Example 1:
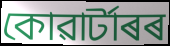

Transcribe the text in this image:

কোৱাৰ্টাৰৰ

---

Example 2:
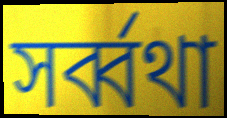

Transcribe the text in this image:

সৰ্ব্বথা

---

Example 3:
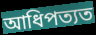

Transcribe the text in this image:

আধিপত্যত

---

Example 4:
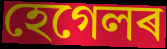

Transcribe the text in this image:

হেগেলৰ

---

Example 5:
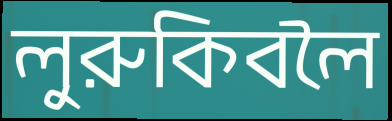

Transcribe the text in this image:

লুৰুকিবলৈ